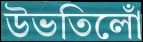
উভতিলোঁ